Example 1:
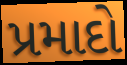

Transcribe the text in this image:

પ્રમાદો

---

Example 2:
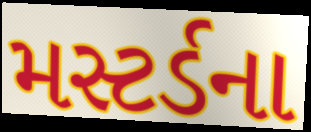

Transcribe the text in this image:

મસ્ટર્ડના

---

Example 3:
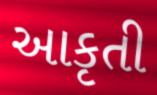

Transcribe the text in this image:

આકૃતી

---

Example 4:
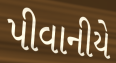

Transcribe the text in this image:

પીવાનીયે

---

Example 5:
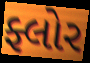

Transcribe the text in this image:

ફ્લોર